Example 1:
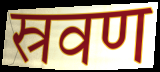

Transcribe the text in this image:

स्रवण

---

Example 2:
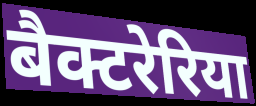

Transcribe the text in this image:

बैक्टरेरिया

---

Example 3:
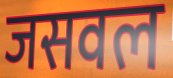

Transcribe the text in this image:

जसवल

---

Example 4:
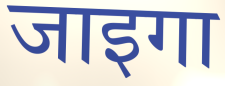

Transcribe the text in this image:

जाइगा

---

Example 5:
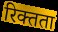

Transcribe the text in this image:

रिक्तता